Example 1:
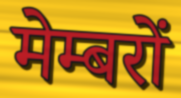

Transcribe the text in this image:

मेम्बरों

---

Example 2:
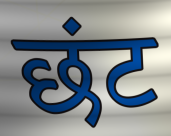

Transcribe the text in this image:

छंट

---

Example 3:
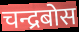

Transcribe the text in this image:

चन्द्रबोस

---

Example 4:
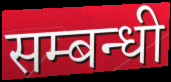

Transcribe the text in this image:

सम्बन्धी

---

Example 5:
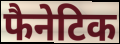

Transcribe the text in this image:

फैनेटिक